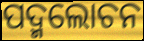
ପଦ୍ମଲୋଚନ